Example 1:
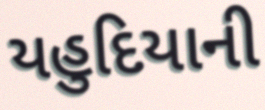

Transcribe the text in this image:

યહુદિયાની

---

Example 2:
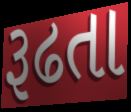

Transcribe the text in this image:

રૂઢતા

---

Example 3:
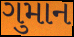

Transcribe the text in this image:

ગુમાન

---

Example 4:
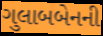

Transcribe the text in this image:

ગુલાબબેનની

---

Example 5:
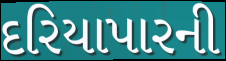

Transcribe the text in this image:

દરિયાપારની